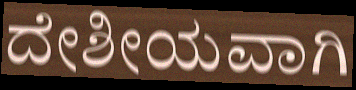
ದೇಶೀಯವಾಗಿ